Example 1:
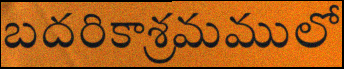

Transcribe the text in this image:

బదరికాశ్రమములో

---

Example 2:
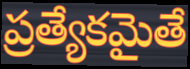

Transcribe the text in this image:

ప్రత్యేకమైతే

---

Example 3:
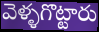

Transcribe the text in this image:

వెళ్ళగొట్టారు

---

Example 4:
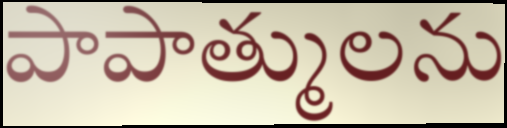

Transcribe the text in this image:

పాపాత్ములను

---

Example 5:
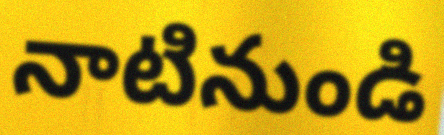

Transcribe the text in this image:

నాటినుండి